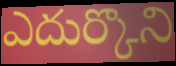
ఎదుర్కొని